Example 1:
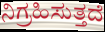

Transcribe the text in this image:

ನಿಗ್ರಹಿಸುತ್ತದೆ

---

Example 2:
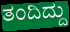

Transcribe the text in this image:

ತಂದಿದ್ದು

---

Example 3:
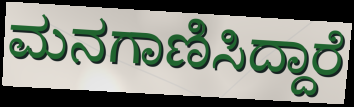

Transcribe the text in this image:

ಮನಗಾಣಿಸಿದ್ದಾರೆ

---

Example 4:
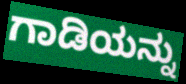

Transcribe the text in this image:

ಗಾಡಿಯನ್ನು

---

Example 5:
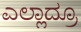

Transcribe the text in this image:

ಎಲ್ಲಾದ್ರೂ